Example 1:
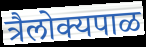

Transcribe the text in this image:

त्रैलोक्यपाळ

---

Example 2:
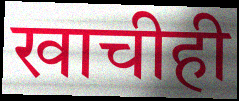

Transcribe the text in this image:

खाचीही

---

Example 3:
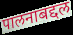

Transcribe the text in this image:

पालनाबद्दल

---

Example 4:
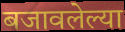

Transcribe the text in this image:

बजावलेल्या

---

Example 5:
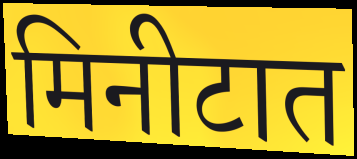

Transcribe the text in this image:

मिनीटात